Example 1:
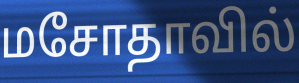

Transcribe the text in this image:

மசோதாவில்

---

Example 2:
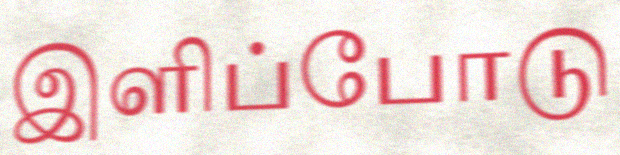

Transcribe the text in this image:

இளிப்போடு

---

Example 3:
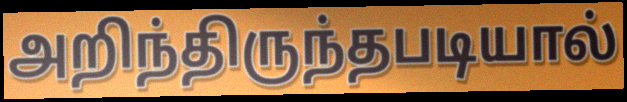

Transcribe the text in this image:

அறிந்திருந்தபடியால்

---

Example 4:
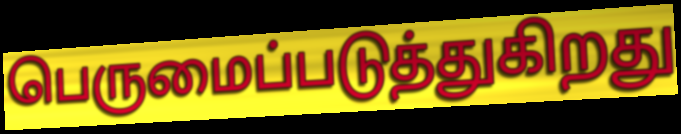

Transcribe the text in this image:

பெருமைப்படுத்துகிறது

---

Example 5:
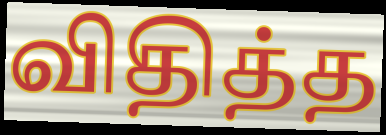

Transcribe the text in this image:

விதித்த